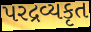
પરદ્રવ્યકૃત